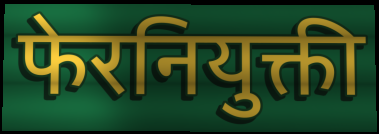
फेरनियुक्ती